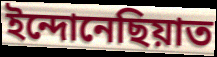
ইন্দোনেছিয়াত